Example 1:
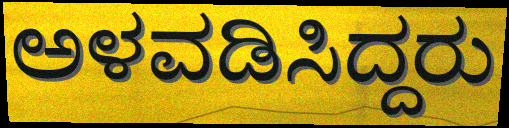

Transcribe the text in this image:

ಅಳವಡಿಸಿದ್ದರು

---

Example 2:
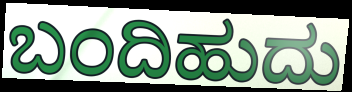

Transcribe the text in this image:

ಬಂದಿಹುದು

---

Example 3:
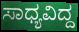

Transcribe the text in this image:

ಸಾಧ್ಯವಿದ್ದ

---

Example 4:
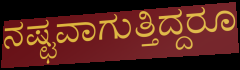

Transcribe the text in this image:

ನಷ್ಟವಾಗುತ್ತಿದ್ದರೂ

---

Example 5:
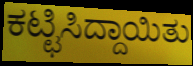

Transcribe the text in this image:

ಕಟ್ಟಿಸಿದ್ದಾಯಿತು